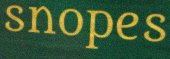
snopes